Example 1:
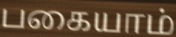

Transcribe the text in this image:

பகையாம்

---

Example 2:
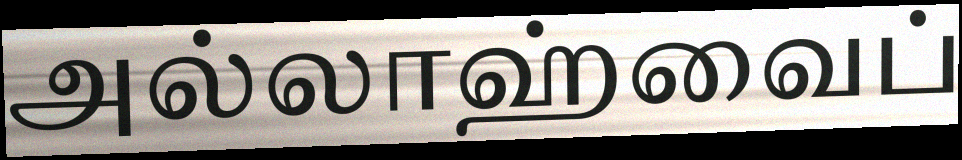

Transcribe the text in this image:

அல்லாஹ்வைப்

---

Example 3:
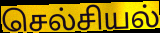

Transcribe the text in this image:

செல்சியல்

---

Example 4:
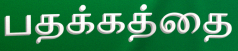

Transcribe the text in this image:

பதக்கத்தை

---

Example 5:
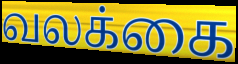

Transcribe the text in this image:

வலக்கை